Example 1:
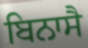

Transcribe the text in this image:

ਬਿਨਾਸੈ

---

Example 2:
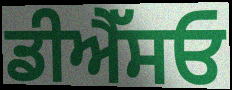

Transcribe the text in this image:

ਡੀਐੱਸਓ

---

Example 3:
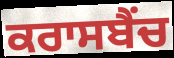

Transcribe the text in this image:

ਕਰਾਸਬੈਂਚ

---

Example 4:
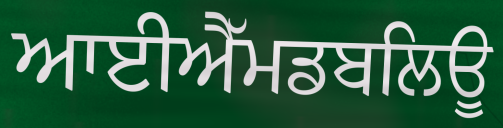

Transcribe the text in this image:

ਆਈਐੱਮਡਬਲਿਊ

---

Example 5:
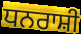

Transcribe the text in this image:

ਧਨਰਾਸ਼ੀ